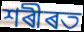
শৰীৰত